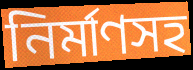
নির্মাণসহ